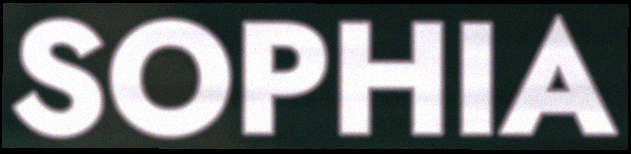
SOPHIA